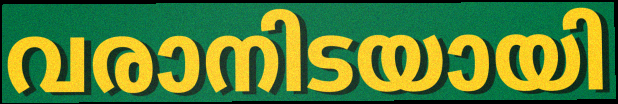
വരാനിടയായി